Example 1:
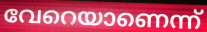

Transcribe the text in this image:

വേറെയാണെന്ന്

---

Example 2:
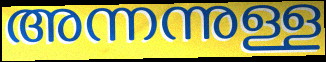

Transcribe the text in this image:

അന്നന്നുള്ള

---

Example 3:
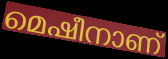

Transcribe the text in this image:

മെഷീനാണ്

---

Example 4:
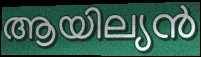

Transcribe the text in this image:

ആയില്യൻ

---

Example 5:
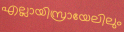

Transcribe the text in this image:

എല്ലായിസ്രായേലിലും